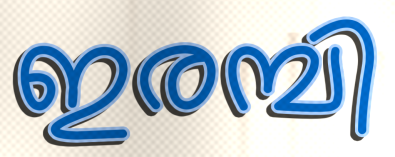
ഇരമ്പി